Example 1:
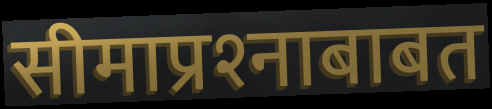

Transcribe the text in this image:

सीमाप्रश्नाबाबत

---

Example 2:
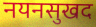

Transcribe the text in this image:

नयनसुखद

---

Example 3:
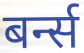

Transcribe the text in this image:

बर्न्स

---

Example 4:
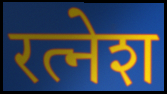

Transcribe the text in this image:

रत्नेश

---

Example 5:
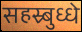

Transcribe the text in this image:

सहस्र्बुध्धे